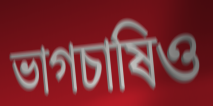
ভাগচাষিও